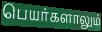
பெயர்களாலும்